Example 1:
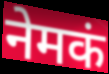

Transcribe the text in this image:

नेमकं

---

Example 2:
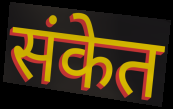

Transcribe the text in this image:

संकेत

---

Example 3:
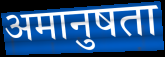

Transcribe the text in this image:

अमानुषता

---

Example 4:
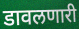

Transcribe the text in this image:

डावलणारी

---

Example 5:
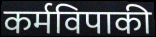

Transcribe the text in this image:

कर्मविपाकी